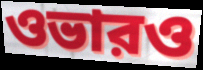
ওভারও